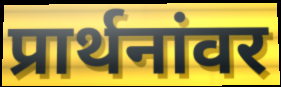
प्रार्थनांवर